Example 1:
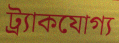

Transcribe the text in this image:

ট্র্যাকযোগ্য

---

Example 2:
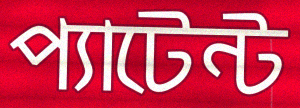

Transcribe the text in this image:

প্যাটেন্ট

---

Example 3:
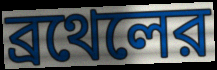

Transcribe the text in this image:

ব্রথেলের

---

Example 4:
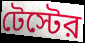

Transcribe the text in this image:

টেস্টের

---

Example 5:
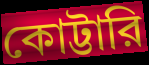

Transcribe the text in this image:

কোট্টারি